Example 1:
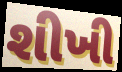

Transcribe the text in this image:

શીખી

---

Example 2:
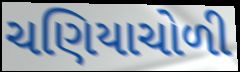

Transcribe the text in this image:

ચણિયાચોળી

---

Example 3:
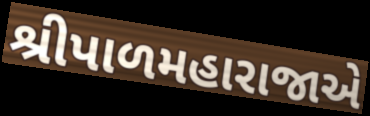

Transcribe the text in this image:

શ્રીપાળમહારાજાએ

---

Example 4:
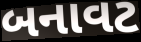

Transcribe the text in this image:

બનાવટ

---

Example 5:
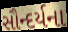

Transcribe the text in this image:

સૌન્દર્યના